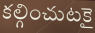
కల్గించుటకై